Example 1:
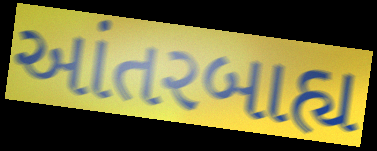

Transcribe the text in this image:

આંતરબાહ્ય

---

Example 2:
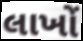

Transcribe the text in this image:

લાખોં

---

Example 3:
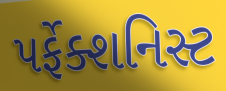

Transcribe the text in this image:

પર્ફેક્શનિસ્ટ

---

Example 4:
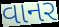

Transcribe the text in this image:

વાનર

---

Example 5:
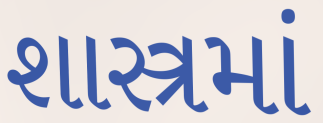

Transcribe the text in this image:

શાસ્ત્રમાં